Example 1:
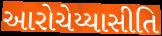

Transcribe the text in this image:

આરોચેય્યાસીતિ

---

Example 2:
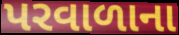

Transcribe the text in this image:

પરવાળાના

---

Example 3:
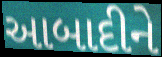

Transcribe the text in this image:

આબાદીને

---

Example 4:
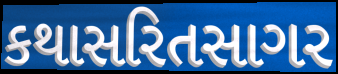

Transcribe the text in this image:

કથાસરિતસાગર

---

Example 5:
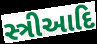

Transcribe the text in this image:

સ્ત્રીઆદિ